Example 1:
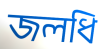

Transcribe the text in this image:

জলধি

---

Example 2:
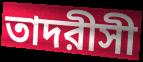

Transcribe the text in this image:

তাদরীসী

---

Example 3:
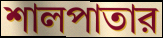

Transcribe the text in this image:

শালপাতার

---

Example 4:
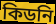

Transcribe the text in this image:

কিডনি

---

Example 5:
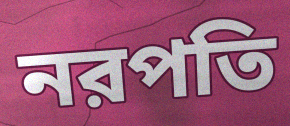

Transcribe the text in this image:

নরপতি